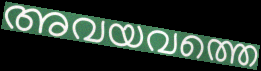
അവയവത്തെ